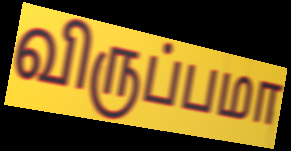
விருப்பமா